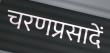
चरणप्रसादें